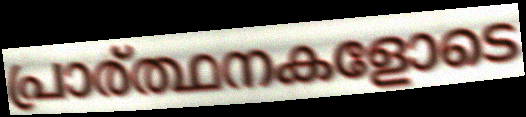
പ്രാര്ത്ഥനകളോടെ